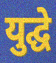
युद्घे